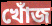
খোঁজ